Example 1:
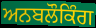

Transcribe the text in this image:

ਅਨਬਲੌਕਿੰਗ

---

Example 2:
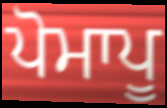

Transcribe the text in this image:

ਪੋਮਾਪੂ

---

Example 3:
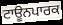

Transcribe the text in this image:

ਟਾਊਨਪਾਰਕ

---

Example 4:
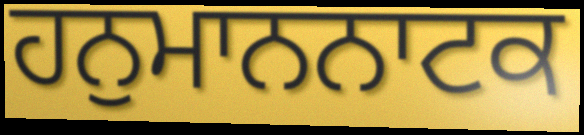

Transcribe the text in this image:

ਹਨੁਮਾਨਨਾਟਕ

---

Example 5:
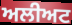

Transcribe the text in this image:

ਅਲੀਅਟ